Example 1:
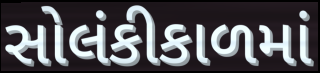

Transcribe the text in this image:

સોલંકીકાળમાં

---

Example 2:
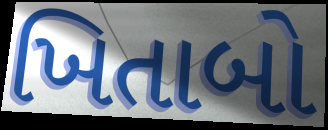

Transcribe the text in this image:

ખિતાબો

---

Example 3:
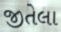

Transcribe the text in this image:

જીતેલા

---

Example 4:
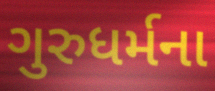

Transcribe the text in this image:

ગુરુધર્મના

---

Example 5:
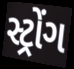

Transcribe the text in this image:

સ્ટ્રોંગ